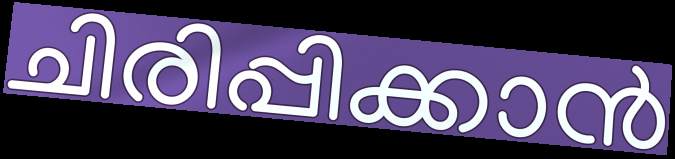
ചിരിപ്പിക്കാൻ